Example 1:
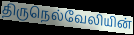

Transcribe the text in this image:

திருநெல்வேலியின்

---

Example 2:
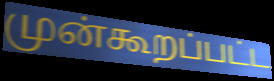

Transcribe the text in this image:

முன்கூறப்பட்ட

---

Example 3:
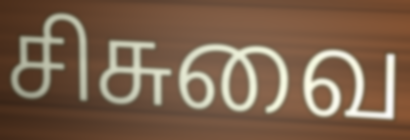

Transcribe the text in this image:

சிசுவை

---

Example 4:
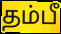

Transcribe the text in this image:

தம்பீ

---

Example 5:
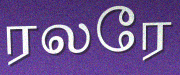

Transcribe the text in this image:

ரலரே